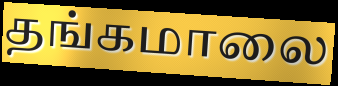
தங்கமாலை